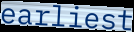
earliest